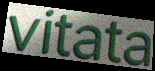
vitata